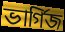
ভাৰ্গিজ